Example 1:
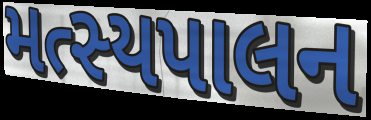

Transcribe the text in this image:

મત્સ્યપાલન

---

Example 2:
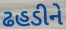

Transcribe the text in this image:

ઢહડીને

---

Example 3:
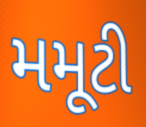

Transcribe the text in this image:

મમૂટી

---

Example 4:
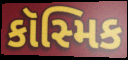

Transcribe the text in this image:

કૉસ્મિક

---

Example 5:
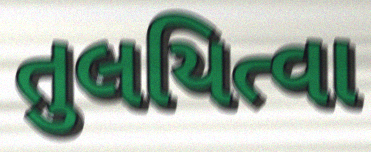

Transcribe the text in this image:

તુલયિત્વા